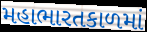
મહાભારતકાળમાં